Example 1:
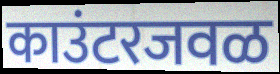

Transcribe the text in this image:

काउंटरजवळ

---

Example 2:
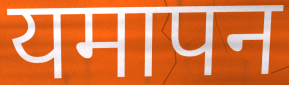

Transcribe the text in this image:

यमापन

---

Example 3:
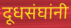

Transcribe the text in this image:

दूधसंघांनी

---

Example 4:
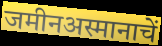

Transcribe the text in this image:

जमीनअस्मानाचें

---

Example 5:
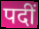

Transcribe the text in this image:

पदीं